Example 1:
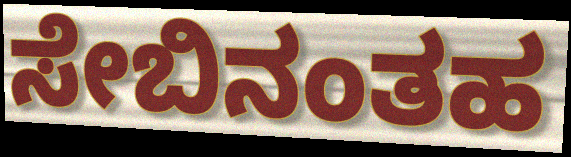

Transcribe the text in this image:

ಸೇಬಿನಂತಹ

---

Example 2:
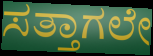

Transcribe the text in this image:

ಸತ್ತಾಗಲೇ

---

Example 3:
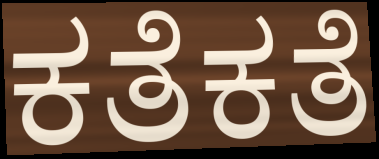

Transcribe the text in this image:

ಕತೆಕತೆ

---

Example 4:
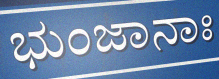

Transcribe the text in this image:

ಭುಂಜಾನಾಃ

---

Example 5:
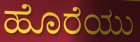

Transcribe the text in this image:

ಹೊರೆಯು